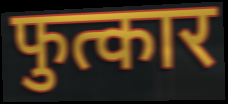
फुत्कार